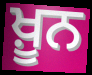
ਖ਼ੂਨ